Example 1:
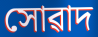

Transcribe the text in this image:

সোৱাদ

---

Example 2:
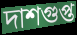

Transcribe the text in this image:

দাশগুপ্ত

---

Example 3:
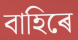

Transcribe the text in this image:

বাহিৰে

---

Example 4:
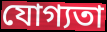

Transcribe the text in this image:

যোগ্যতা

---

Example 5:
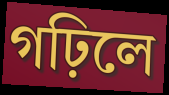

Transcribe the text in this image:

গঢ়িলে